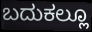
ಬದುಕಲ್ಲೂ